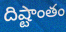
దిష్టాంతం